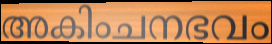
അകിംചനഭവം